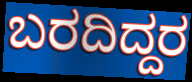
ಬರದಿದ್ದರ